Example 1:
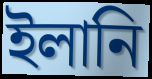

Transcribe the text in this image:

ইলানি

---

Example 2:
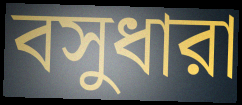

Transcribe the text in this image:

বসুধারা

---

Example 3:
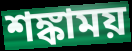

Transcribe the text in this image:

শঙ্কাময়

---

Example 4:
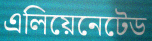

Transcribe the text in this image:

এলিয়েনেটেড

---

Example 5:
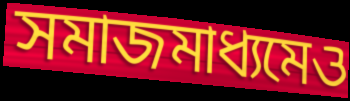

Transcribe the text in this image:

সমাজমাধ্যমেও